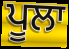
ਪੂਲਾ